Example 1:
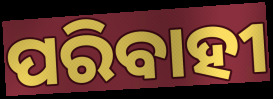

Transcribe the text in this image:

ପରିବାହୀ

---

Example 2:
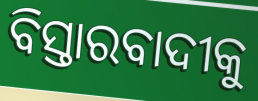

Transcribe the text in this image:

ବିସ୍ତାରବାଦୀକୁ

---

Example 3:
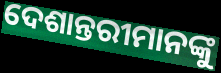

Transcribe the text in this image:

ଦେଶାନ୍ତରୀମାନଙ୍କୁ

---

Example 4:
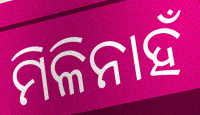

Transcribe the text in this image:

ମିଳିନାହଁ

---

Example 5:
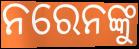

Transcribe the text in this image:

ନରେନଙ୍କୁ